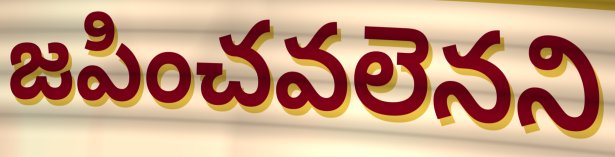
జపించవలెనని